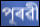
পূৰৱী